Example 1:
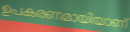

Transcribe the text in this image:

ഉപകരണമായിയാണ്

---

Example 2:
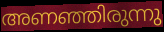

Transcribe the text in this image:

അണഞ്ഞിരുന്നു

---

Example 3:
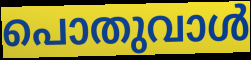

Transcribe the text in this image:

പൊതുവാൾ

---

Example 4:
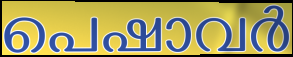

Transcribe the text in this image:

പെഷാവർ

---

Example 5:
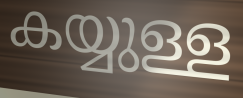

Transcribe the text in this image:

കയ്യുള്ള